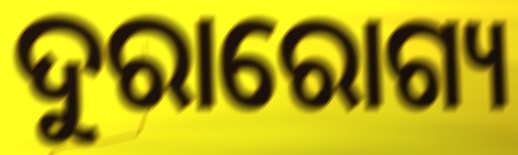
ଦୁରାରୋଗ୍ୟ